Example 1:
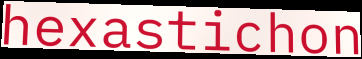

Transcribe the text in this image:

hexastichon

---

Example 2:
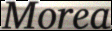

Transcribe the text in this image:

Morea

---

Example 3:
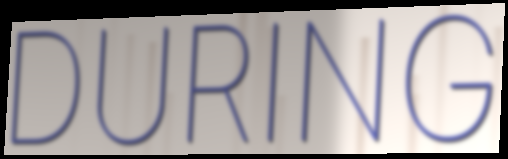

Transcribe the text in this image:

DURING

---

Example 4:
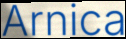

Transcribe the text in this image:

Arnica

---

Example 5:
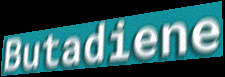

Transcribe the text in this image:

Butadiene